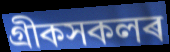
গ্ৰীকসকলৰ